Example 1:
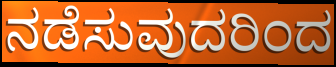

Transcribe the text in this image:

ನಡೆಸುವುದರಿಂದ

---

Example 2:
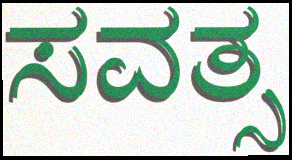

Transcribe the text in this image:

ಸವತ್ಸ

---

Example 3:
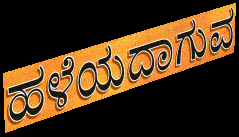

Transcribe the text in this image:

ಹಳೆಯದಾಗುವ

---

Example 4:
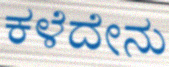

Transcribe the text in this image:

ಕಳೆದೇನು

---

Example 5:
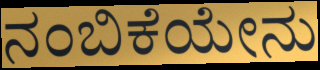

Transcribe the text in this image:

ನಂಬಿಕೆಯೇನು